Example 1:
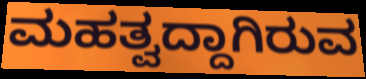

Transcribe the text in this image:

ಮಹತ್ವದ್ದಾಗಿರುವ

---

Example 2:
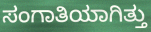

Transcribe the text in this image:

ಸಂಗಾತಿಯಾಗಿತ್ತು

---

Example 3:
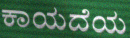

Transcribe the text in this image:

ಕಾಯದೆಯ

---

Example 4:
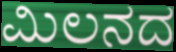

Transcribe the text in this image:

ಮಿಲನದ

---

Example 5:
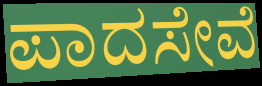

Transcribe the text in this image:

ಪಾದಸೇವೆ